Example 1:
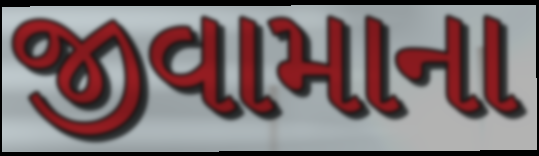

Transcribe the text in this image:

જીવામાના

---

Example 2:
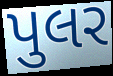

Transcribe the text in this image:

પુલર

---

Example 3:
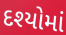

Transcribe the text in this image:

દશ્યોમાં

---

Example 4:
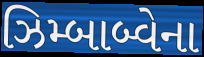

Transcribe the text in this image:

ઝિમ્બાબ્વેના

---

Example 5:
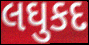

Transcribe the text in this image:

લઘુકદ